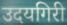
उदयगिरी